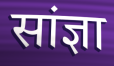
सांज्ञा